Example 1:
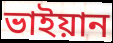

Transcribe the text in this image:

ভাইয়ান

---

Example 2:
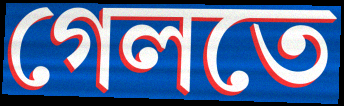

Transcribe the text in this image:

গেলতে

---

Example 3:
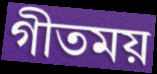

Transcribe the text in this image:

গীতময়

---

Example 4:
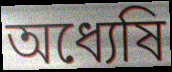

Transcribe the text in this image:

অধ্যেষি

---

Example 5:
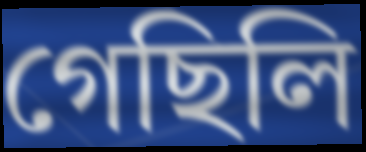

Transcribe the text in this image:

গেছিলি